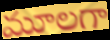
మూలగా